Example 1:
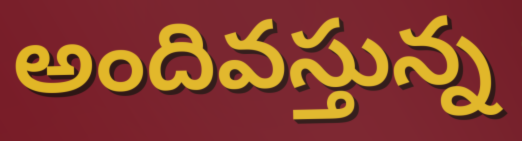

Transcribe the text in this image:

అందివస్తున్న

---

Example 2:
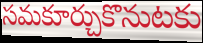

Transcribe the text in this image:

సమకూర్చుకొనుటకు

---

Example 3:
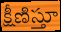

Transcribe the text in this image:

క్షీణిస్తూ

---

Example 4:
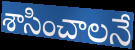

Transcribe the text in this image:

శాసించాలనే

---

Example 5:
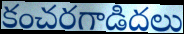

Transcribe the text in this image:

కంచరగాడిదలు